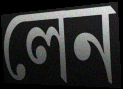
লেন